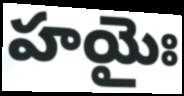
హయైః